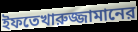
ইফতেখারুজ্জামানের